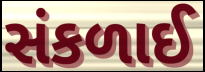
સંકળાઈ